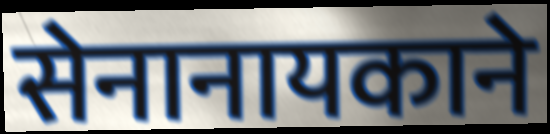
सेनानायकाने